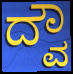
ದ್ವೌ